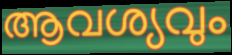
ആവശ്യവും